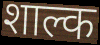
शाल्क